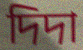
দিদা